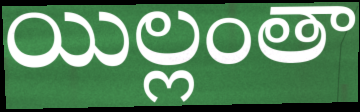
యిల్లంతా